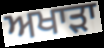
ਅਖਾੜਾ